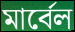
মার্বেল